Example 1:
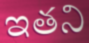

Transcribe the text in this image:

ఇతని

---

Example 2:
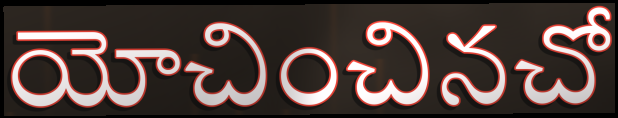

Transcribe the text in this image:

యోచించినచో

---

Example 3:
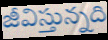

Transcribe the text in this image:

జీవిస్తున్నది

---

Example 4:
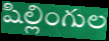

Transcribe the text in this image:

షిల్లింగుల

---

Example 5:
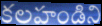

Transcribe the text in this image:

కలహండిని